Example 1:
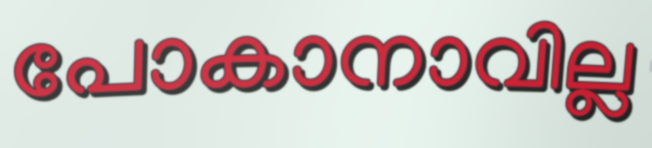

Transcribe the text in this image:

പോകാനാവില്ല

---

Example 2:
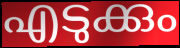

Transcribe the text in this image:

എടുക്കും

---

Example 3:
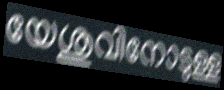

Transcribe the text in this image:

യേശുവിനോടുള്ള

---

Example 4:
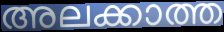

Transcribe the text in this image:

അലക്കാത്ത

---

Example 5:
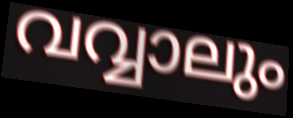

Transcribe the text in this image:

വവ്വാലും